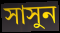
সাসুন